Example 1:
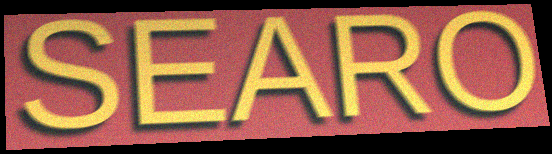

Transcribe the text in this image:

SEARO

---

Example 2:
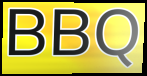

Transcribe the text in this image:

BBQ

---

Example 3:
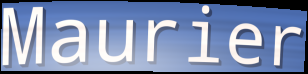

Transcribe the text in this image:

Maurier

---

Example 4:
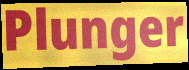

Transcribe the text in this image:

Plunger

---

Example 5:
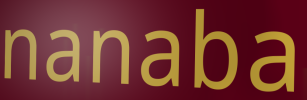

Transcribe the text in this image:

nanaba